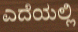
ಎದೆಯಲ್ಲಿ